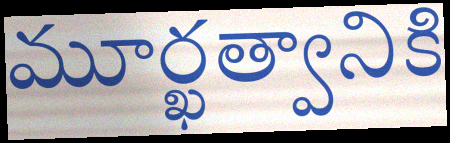
మూర్ఖత్వానికి